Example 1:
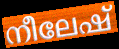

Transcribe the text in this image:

നീലേഷ്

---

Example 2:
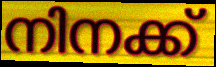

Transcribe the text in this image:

നിനക്ക്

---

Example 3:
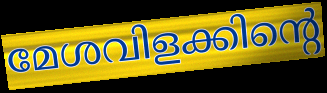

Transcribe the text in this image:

മേശവിളക്കിന്റെ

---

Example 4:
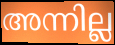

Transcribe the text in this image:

അന്നില്ല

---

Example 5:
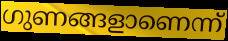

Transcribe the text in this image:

ഗുണങ്ങളാണെന്ന്